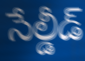
సేల్డీడ్